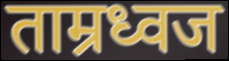
ताम्रध्वज